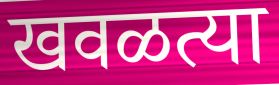
खवळत्या